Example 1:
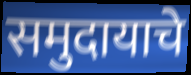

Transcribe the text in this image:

समुदायाचे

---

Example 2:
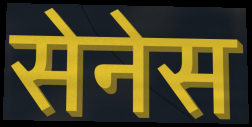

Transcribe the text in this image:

सेनेस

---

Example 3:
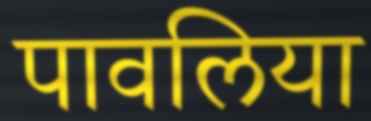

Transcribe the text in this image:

पावलिया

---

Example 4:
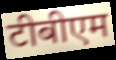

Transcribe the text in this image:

टीबीएम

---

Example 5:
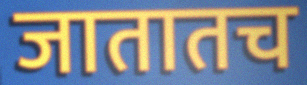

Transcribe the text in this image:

जातातच